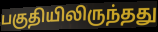
பகுதியிலிருந்தது